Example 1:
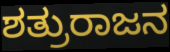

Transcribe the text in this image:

ಶತ್ರುರಾಜನ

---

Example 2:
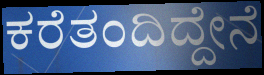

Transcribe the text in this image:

ಕರೆತಂದಿದ್ದೇನೆ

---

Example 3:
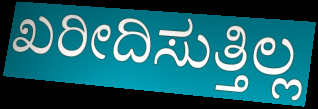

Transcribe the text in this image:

ಖರೀದಿಸುತ್ತಿಲ್ಲ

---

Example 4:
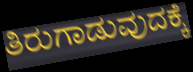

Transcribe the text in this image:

ತಿರುಗಾಡುವುದಕ್ಕೆ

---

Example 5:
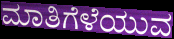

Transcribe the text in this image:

ಮಾತಿಗೆಳೆಯುವ